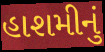
હાશમીનું